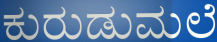
ಕುರುಡುಮಲೆ